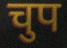
चुप